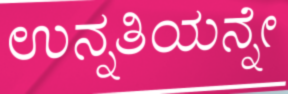
ಉನ್ನತಿಯನ್ನೇ